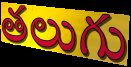
తలుగు